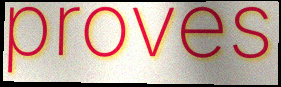
proves